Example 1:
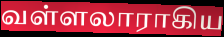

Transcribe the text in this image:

வள்ளலாராகிய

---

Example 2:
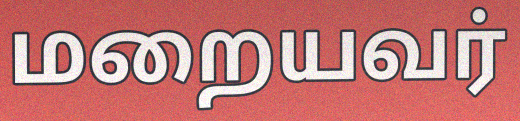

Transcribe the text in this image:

மறையவர்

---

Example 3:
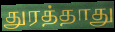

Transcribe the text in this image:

துரத்தாது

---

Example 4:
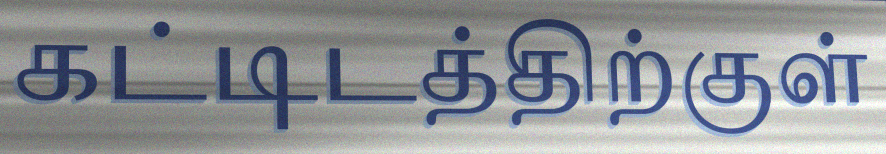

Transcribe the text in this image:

கட்டிடத்திற்குள்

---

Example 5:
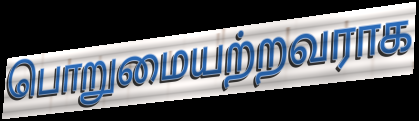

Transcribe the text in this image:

பொறுமையற்றவராக